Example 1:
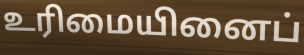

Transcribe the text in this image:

உரிமையினைப்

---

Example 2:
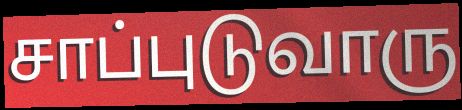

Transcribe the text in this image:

சாப்புடுவாரு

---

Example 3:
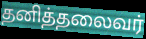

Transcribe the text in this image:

தனித்தலைவர்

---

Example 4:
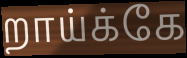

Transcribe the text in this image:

றாய்க்கே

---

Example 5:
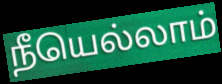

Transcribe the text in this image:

நீயெல்லாம்